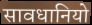
सावधानियो